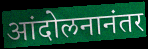
आंदोलनानंतर